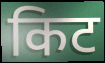
किट